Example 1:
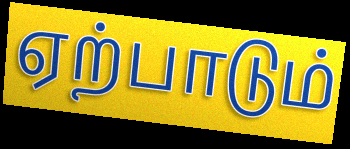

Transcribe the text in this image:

ஏற்பாடும்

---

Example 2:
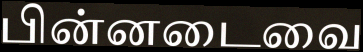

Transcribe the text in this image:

பின்னடைவை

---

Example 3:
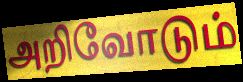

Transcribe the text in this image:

அறிவோடும்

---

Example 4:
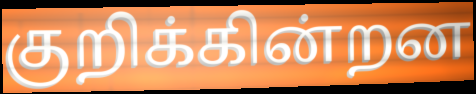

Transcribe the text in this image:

குறிக்கின்றன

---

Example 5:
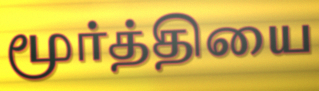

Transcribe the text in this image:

மூர்த்தியை